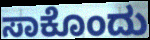
ಸಾಕೊಂದು